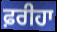
ਫ਼ਰੀਹਾ